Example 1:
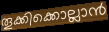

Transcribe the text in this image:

തൂക്കിക്കൊല്ലാൻ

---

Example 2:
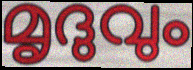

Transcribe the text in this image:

മൃദുവും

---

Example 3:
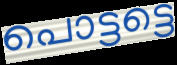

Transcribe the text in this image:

പൊട്ടട്ടെ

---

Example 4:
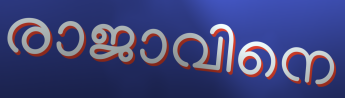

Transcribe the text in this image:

രാജാവിനെ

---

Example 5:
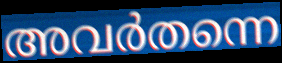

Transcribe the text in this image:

അവർതന്നെ